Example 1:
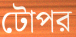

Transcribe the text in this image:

টোপর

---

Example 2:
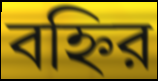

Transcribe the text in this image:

বহ্নির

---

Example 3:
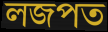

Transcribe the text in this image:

লজপত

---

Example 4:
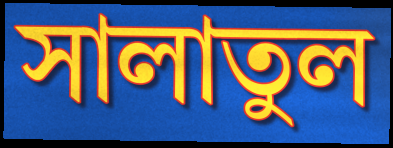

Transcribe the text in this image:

সালাতুল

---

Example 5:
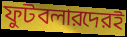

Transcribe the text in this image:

ফুটবলারদেরই